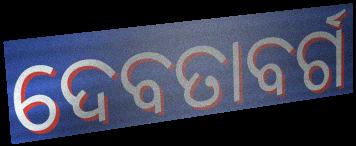
ଦେବତାବର୍ଗ